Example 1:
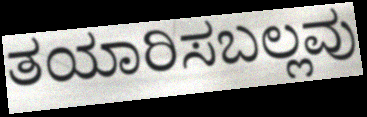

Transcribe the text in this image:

ತಯಾರಿಸಬಲ್ಲವು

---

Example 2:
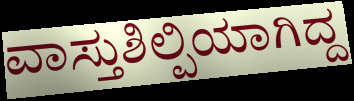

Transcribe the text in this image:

ವಾಸ್ತುಶಿಲ್ಪಿಯಾಗಿದ್ದ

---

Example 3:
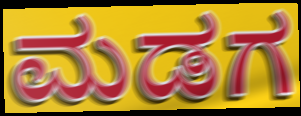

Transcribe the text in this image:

ಮಡಗ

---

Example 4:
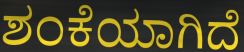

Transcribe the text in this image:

ಶಂಕೆಯಾಗಿದೆ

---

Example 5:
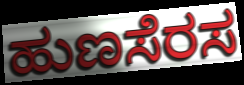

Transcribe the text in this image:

ಹುಣಸೆರಸ